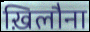
ख़िलौना